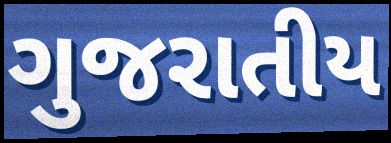
ગુજરાતીય